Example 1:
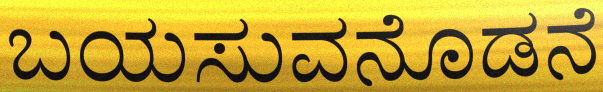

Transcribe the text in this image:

ಬಯಸುವನೊಡನೆ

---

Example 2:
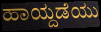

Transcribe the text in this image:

ಹಾಯ್ದಡೆಯು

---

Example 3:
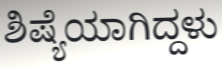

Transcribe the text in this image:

ಶಿಷ್ಯೆಯಾಗಿದ್ದಳು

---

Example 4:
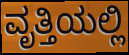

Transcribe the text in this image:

ವೃತ್ತಿಯಲ್ಲಿ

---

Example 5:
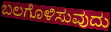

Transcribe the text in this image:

ಬಲಗೊಳಿಸುವುದು